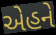
એહને